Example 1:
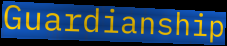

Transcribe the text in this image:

Guardianship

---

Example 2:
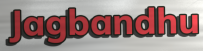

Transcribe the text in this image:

Jagbandhu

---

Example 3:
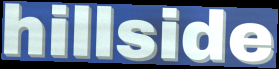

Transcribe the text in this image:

hillside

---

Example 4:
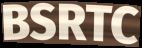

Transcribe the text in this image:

BSRTC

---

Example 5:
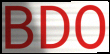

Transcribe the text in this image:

BDO